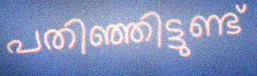
പതിഞ്ഞിട്ടുണ്ട്